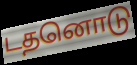
டதனொடு